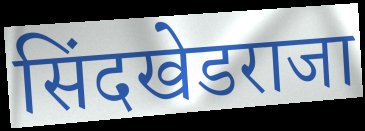
सिंदखेडराजा